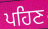
ਪਹਿਣ